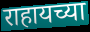
राहायच्या